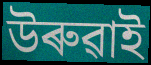
উৰুৱাই